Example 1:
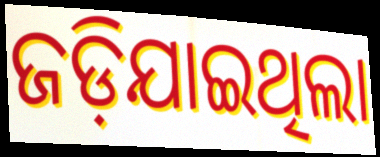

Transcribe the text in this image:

ଜଡ଼ିଯାଇଥିଲା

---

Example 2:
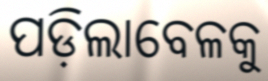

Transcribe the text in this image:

ପଡ଼ିଲାବେଳକୁ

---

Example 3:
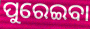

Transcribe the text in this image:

ପୁରେଇବା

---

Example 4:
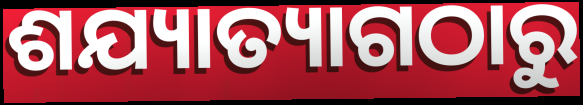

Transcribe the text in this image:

ଶଯ୍ୟାତ୍ୟାଗଠାରୁ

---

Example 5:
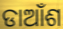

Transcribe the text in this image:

ଡାଆଁଶ